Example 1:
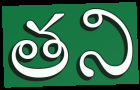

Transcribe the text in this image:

తని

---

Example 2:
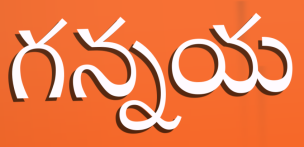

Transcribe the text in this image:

గన్నయ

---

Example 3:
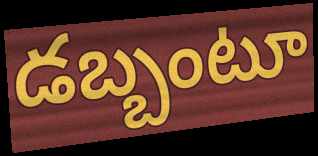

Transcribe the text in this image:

డబ్బంటూ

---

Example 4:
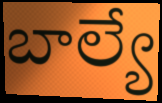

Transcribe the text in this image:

బాల్యే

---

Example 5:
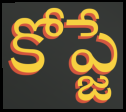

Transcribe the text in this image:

కోప్జే